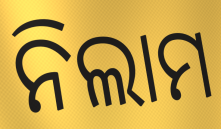
ନିଲାମ